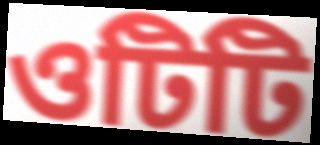
ওটিটি